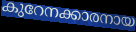
കുറേനക്കാരനായ